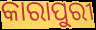
କାରାପୁରୀ